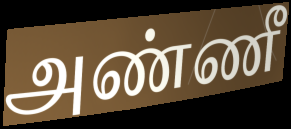
அண்ணீ